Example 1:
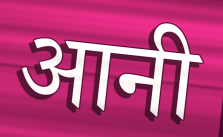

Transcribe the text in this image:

आनी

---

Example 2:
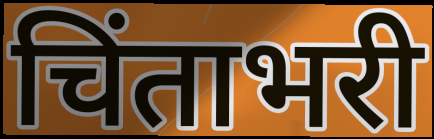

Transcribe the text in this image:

चिंताभरी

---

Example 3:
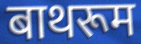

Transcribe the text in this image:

बाथरूम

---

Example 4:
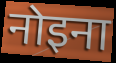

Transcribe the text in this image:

नोइना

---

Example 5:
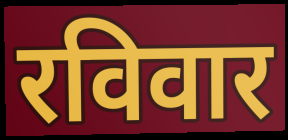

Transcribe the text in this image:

रविवार